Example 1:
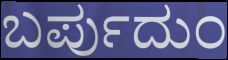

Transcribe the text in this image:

ಬರ್ಪುದುಂ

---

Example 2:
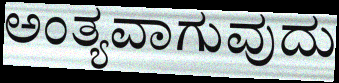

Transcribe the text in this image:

ಅಂತ್ಯವಾಗುವುದು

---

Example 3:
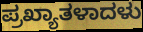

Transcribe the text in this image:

ಪ್ರಖ್ಯಾತಳಾದಳು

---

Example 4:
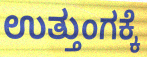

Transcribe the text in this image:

ಉತ್ತುಂಗಕ್ಕೆ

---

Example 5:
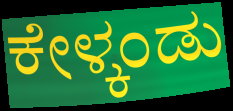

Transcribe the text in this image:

ಕೇಳ್ಕಂಡು